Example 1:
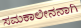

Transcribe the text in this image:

ಸಮಕಾಲೀನನಾಗಿ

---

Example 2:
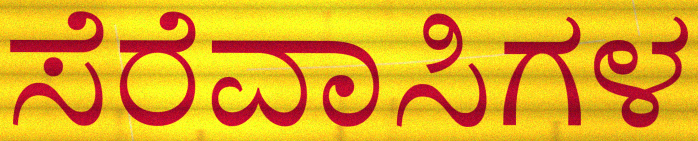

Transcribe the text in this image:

ಸೆರೆವಾಸಿಗಳ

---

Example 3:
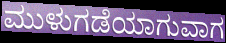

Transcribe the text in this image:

ಮುಳುಗಡೆಯಾಗುವಾಗ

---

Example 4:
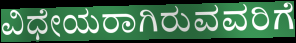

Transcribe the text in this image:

ವಿಧೇಯರಾಗಿರುವವರಿಗೆ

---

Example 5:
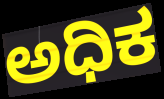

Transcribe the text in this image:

ಅಧಿಕ